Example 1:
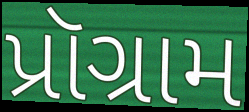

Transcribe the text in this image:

પ્રૉગ્રામ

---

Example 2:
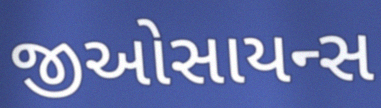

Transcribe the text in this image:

જીઓસાયન્સ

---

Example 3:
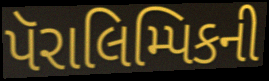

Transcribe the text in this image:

પૅરાલિમ્પિકની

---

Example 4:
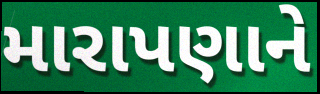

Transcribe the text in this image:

મારાપણાને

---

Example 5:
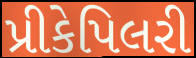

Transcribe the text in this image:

પ્રીકેપિલરી